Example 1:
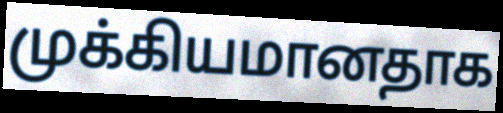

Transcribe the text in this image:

முக்கியமானதாக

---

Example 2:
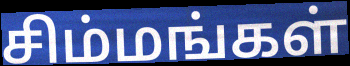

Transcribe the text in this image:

சிம்மங்கள்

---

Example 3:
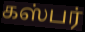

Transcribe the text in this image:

கஸ்பர்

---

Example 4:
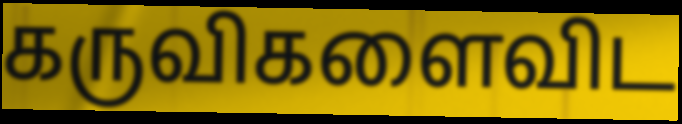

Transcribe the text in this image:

கருவிகளைவிட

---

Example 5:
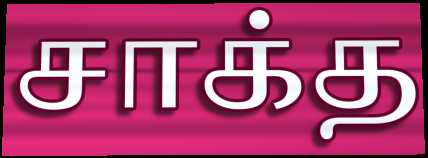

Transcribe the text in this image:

சாக்த